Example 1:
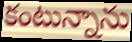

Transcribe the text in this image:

కంటున్నాను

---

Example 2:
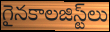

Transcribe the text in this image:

గైనకాలజిస్ట్‌లు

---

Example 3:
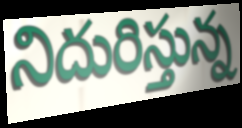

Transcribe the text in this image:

నిదురిస్తున్న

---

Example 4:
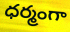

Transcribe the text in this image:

ధర్మంగా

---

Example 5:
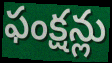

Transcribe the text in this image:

ఫంక్షన్లు